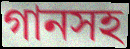
গানসহ